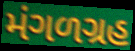
મંગળગ્રહ